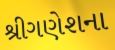
શ્રીગણેશના